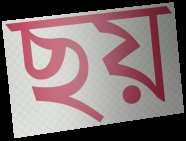
ছয়